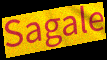
Sagale